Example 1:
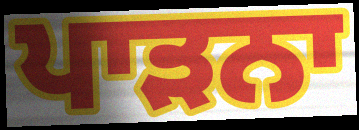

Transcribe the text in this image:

ਪਾੜਨਾ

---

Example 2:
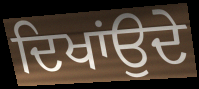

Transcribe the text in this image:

ਦਿਖਾਂਉਦੇ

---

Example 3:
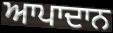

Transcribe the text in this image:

ਆਪਾਦਾਨ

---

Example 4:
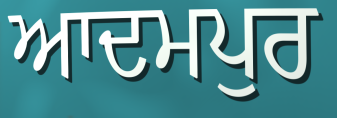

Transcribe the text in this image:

ਆਦਮਪੁਰ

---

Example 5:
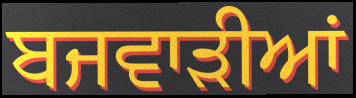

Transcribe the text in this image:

ਬਜਵਾੜੀਆਂ